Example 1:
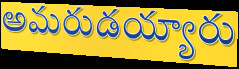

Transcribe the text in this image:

అమరుడయ్యారు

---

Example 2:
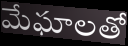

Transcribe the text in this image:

మేఘాలతో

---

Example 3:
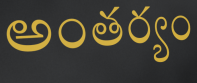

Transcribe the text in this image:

అంతర్యం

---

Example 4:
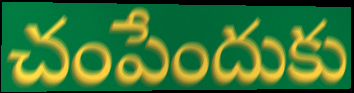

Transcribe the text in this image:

చంపేందుకు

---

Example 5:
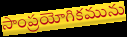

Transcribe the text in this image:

సాంప్రయోగికమును